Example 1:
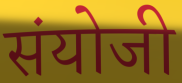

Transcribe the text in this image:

संयोजी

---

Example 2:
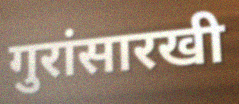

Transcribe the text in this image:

गुरांसारखी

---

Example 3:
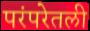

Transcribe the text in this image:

परंपरेतली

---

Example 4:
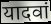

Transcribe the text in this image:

यादवां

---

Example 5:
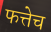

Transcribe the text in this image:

फत्तेच